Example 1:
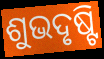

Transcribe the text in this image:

ଶୁଭଦୃଷ୍ଟି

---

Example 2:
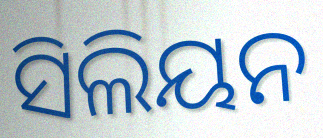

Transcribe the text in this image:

ସିଲିୟନ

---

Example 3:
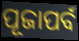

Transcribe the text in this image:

ପୂଜାପର୍ବ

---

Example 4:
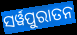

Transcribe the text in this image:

ସର୍ୱପୁରାତନ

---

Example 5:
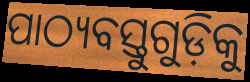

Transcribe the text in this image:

ପାଠ୍ୟବସ୍ତୁଗୁଡ଼ିକୁ